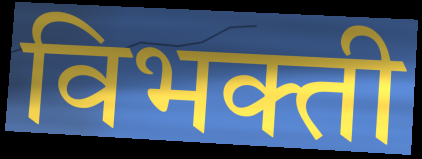
विभक्ती